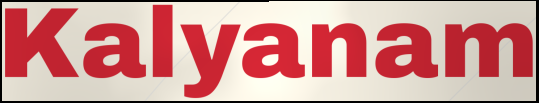
Kalyanam